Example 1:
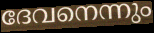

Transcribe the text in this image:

ദേവനെന്നും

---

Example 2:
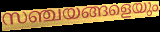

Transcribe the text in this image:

സഞ്ചയങ്ങളെയും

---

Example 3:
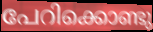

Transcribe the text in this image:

പേറിക്കൊണ്ടു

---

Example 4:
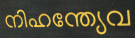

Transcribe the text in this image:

നിഹന്ത്യേവ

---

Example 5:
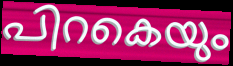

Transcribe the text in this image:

പിറകെയും